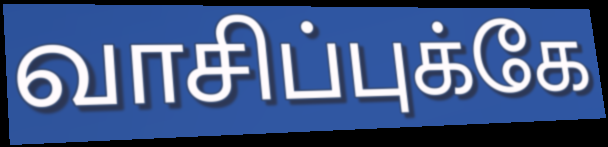
வாசிப்புக்கே